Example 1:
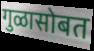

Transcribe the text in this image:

गुळासोबत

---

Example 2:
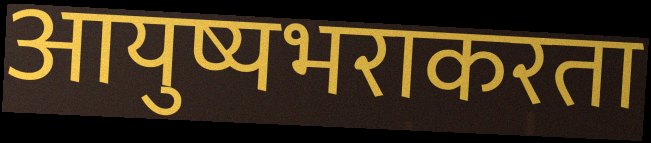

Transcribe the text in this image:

आयुष्यभराकरता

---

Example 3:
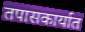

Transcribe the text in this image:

तपासकार्यात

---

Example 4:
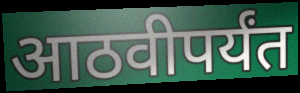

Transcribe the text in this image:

आठवीपर्यंत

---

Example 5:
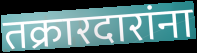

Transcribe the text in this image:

तक्रारदारांना